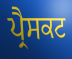
ਪ੍ਰੈਸਕਟ